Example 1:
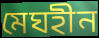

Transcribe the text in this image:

মেঘহীন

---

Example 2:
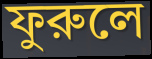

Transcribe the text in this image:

ফুরুলে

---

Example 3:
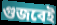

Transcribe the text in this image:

গুজবেই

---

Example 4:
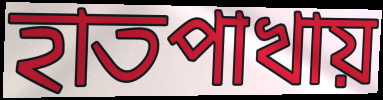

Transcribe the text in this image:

হাতপাখায়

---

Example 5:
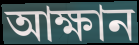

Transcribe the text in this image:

আক্ষান